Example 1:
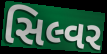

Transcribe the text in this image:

સિલ્વર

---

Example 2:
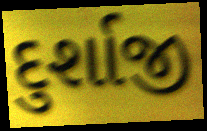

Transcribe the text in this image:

દુર્શાજી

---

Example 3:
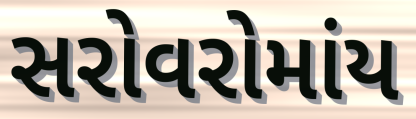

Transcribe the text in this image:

સરોવરોમાંય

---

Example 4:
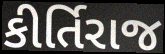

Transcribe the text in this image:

કીર્તિરાજ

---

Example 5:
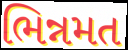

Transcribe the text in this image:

ભિન્નમત